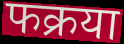
फक्रया